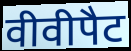
वीवीपैट